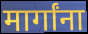
मार्गांना